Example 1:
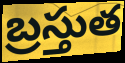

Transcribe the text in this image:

బ్రస్తుత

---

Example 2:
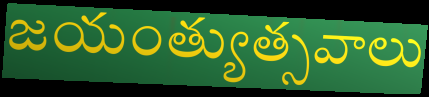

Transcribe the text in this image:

జయంత్యుత్సవాలు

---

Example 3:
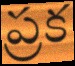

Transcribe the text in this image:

ప్రక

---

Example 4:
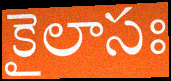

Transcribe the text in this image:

కైలాసః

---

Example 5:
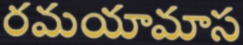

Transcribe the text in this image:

రమయామాస